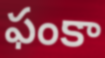
ఫంకా